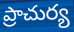
ప్రాచుర్య